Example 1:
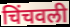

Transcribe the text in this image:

चिंचवली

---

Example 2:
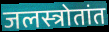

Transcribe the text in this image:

जलस्त्रोतांत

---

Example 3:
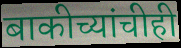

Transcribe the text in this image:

बाकीच्यांचीही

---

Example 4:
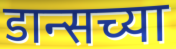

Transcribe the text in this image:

डान्सच्या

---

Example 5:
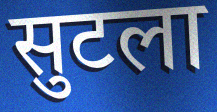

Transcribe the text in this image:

सुटला